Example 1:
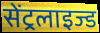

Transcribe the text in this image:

सेंट्रलाइज्ड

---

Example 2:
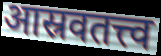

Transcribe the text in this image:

आस्रवतत्त्व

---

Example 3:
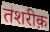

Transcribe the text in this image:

तशरीक़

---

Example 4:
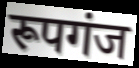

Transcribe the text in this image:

रूपगंज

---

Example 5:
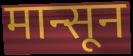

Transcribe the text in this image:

मान्सून